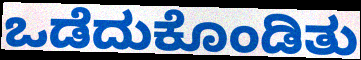
ಒಡೆದುಕೊಂಡಿತು